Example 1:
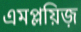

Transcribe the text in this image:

এমপ্লয়িজ়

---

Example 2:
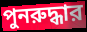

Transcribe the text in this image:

পুনরুদ্ধার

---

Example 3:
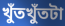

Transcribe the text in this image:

খুঁতখুঁতটা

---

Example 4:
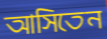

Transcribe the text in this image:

আসিতেন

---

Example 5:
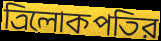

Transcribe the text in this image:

ত্রিলোকপতির